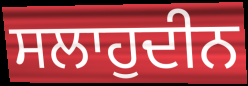
ਸਲਾਹੁਦੀਨ